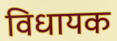
विधायक